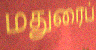
மதுரைப்